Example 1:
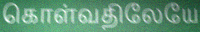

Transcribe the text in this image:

கொள்வதிலேயே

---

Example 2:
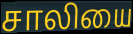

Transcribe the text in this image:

சாலியை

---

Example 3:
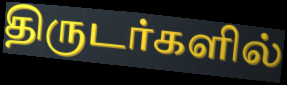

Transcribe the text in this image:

திருடர்களில்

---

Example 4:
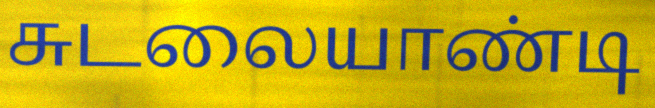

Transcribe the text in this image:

சுடலையாண்டி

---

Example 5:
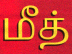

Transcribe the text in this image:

மீத்